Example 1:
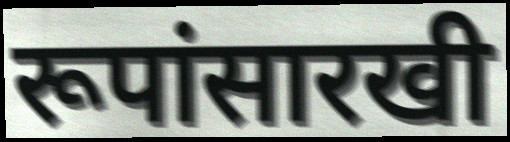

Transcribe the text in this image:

रूपांसारखी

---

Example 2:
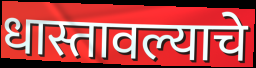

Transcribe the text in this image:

धास्तावल्याचे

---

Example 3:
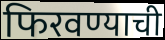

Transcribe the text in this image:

फिरवण्याची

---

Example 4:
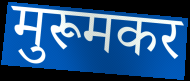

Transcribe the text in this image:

मुरूमकर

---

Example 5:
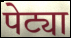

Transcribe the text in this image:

पेट्या